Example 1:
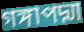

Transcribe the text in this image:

গঙ্গাপদ্মা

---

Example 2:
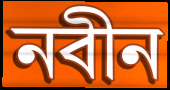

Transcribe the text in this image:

নবীন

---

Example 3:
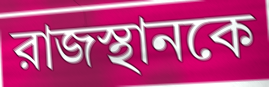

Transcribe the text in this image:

রাজস্থানকে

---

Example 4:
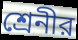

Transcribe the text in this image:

শ্রেনীর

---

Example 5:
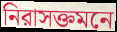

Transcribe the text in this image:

নিরাসক্তমনে